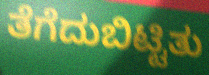
ತೆಗೆದುಬಿಟ್ಟಿತು